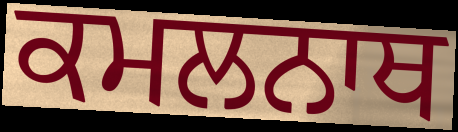
ਕਮਲਨਾਥ